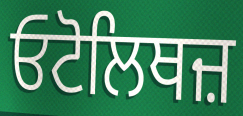
ਓਟੋਲਿਥਜ਼